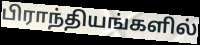
பிராந்தியங்களில்